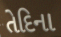
તેદિના